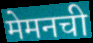
मेमनची